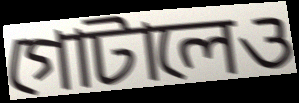
গোটালেও